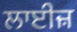
ਲਾਈਜ਼